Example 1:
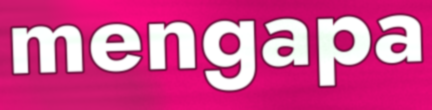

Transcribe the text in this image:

mengapa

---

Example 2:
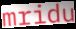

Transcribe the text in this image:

mridu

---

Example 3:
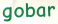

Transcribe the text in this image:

gobar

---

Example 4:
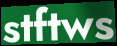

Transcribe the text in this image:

stftws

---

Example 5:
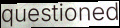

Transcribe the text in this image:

questioned